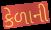
કેળાની